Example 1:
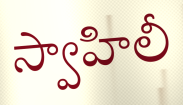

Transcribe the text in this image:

స్వాహిలీ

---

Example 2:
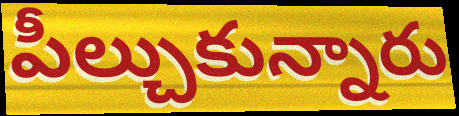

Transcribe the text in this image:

పీల్చుకున్నారు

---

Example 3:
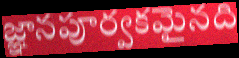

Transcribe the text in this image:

జ్ఞానపూర్వకమైనది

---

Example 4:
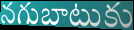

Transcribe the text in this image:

నగుబాటుకు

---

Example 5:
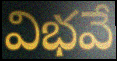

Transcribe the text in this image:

విభవే